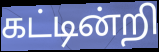
கட்டின்றி